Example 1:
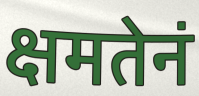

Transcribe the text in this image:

क्षमतेनं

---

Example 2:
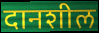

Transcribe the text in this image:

दानशील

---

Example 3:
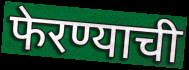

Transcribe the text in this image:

फेरण्याची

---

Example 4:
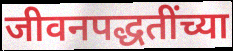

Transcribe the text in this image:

जीवनपद्धतींच्या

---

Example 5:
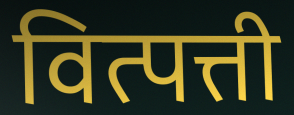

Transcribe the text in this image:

वित्पत्ती